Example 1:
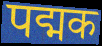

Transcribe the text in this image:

पद्मक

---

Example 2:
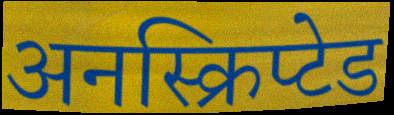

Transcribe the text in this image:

अनस्क्रिप्टेड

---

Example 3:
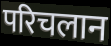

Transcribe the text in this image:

परिचलान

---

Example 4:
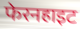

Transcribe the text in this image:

फेरनहाइट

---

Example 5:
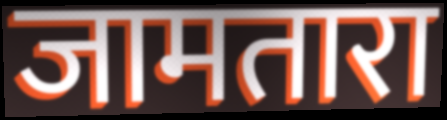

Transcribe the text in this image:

जामतारा